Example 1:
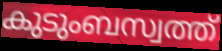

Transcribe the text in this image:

കുടുംബസ്വത്ത്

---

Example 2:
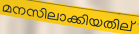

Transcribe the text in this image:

മനസിലാക്കിയതില്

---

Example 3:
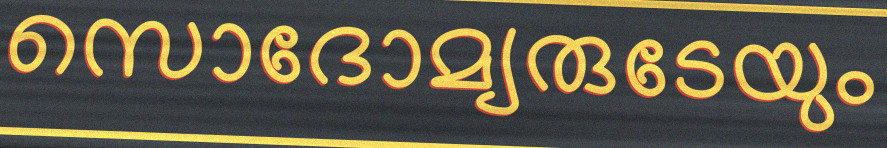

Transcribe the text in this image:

സൊദോമ്യരുടേയും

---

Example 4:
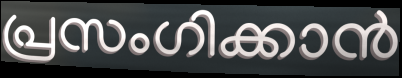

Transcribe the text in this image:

പ്രസംഗിക്കാൻ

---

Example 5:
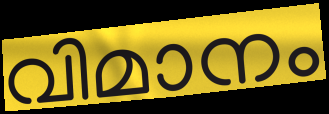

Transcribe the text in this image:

വിമാനം